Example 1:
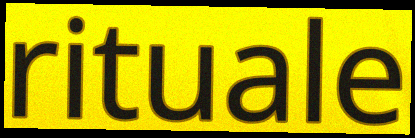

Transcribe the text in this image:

rituale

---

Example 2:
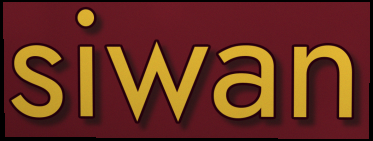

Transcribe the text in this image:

siwan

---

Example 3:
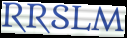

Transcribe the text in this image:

RRSLM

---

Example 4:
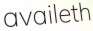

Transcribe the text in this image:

availeth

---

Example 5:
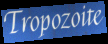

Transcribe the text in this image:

Tropozoite